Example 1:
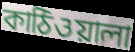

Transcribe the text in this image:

কাঠিওয়ালা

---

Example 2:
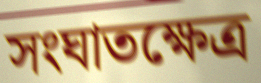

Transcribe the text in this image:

সংঘাতক্ষেত্র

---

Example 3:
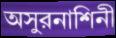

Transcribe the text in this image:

অসুরনাশিনী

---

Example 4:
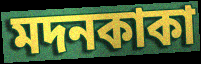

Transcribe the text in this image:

মদনকাকা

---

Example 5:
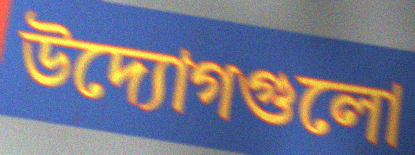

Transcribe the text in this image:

উদ্যোগগুলো